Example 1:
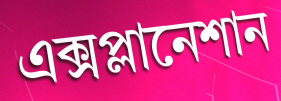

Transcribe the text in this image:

এক্সপ্লানেশান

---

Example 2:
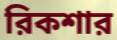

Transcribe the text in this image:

রিকশার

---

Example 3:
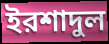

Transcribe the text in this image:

ইরশাদুল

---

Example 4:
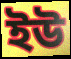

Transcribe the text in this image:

ইউ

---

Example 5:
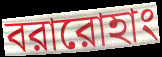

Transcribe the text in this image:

বরারোহাং